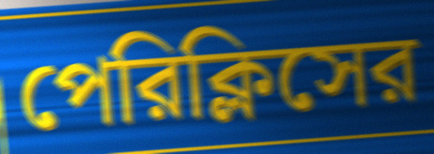
পেরিক্লিসের